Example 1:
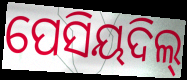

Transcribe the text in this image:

ପେସିୟଦିଲ୍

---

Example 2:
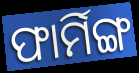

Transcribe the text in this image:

ଫାର୍ମିଙ୍ଗ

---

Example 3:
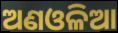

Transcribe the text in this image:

ଅଣଓଳିଆ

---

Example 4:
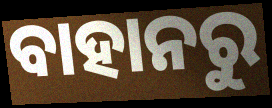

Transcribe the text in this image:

ବାହାନରୁ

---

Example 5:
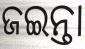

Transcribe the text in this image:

ଜଇନ୍ତା